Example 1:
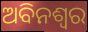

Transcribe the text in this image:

ଅବିନଶ୍ଵର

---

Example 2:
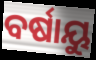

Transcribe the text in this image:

ବର୍ଷାୟୁ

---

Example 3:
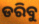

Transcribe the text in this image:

ଡରିବୁ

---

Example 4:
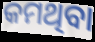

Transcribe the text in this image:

କମଥିବା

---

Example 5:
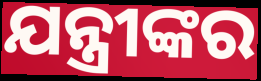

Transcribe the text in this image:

ଯନ୍ତ୍ରୀଙ୍କର